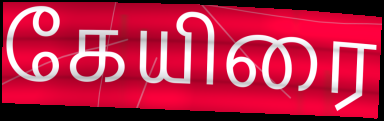
கேயிரை